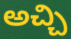
అచ్చి